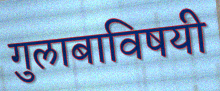
गुलाबाविषयी